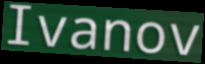
Ivanov